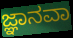
ಜ್ಞಾನವಾ